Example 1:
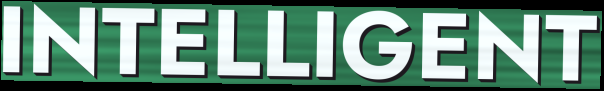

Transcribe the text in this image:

INTELLIGENT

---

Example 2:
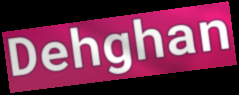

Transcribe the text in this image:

Dehghan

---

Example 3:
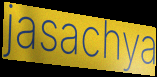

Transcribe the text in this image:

jasachya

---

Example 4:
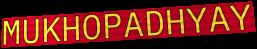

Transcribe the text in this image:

MUKHOPADHYAY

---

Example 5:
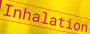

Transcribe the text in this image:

Inhalation